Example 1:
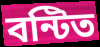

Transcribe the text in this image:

বন্টিত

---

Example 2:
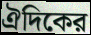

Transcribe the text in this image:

ঐদিকের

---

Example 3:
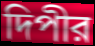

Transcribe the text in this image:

দিপীর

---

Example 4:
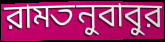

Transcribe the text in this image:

রামতনুবাবুর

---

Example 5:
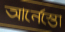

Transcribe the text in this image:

আর্নেস্তো